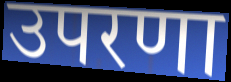
उपरणा